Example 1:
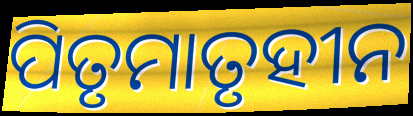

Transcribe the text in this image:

ପିତୃମାତୃହୀନ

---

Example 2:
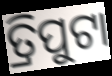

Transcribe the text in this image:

ତ୍ରିପୁଟା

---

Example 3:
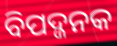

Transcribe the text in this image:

ବିପଦ୍ଜନକ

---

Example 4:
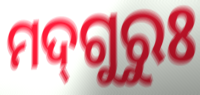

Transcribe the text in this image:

ମଦ୍‌ଗୁରୁଃ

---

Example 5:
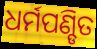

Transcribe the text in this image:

ଧର୍ମପଣ୍ଡିତ